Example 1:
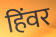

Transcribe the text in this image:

हिंवर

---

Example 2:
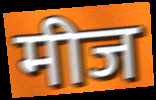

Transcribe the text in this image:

मीज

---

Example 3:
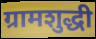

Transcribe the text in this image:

ग्रामशुद्धी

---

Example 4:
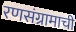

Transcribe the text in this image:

रणसंग्रामाची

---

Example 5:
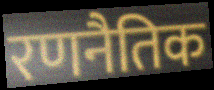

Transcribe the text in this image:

रणनैतिक